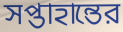
সপ্তাহান্তের